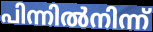
പിന്നിൽനിന്ന്